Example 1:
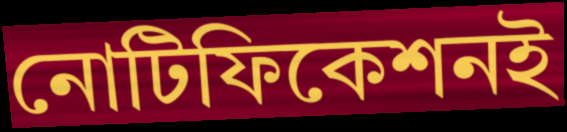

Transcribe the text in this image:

নোটিফিকেশনই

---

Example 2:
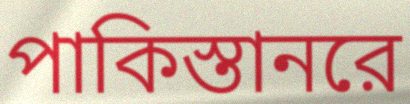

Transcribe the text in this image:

পাকিস্তানরে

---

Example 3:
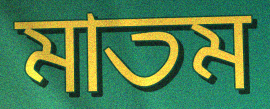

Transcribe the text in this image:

মাতম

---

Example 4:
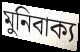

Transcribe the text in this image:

মুনিবাক্য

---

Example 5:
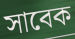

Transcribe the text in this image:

সাবেক